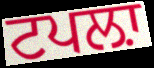
ਟਪਲ਼ਾ